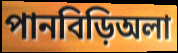
পানবিড়িঅলা